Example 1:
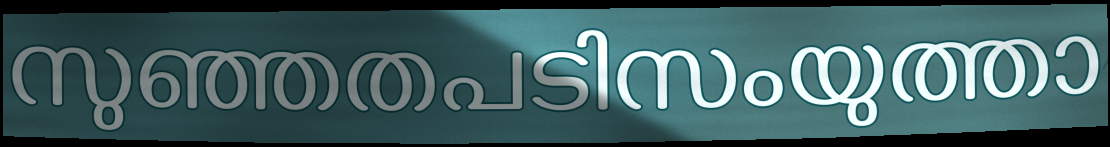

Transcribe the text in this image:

സുഞ്ഞതപടിസംയുത്താ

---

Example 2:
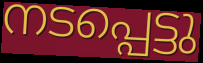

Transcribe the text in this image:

നടപ്പെട്ടു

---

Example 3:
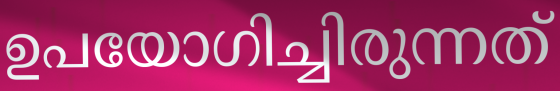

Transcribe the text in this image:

ഉപയോഗിച്ചിരുന്നത്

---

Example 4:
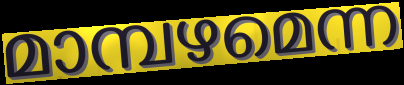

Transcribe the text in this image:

മാമ്പഴമെന്ന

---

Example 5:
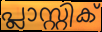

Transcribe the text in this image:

പ്ലാസ്റ്റിക്